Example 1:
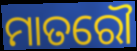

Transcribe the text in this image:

ମାତରୌ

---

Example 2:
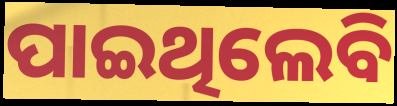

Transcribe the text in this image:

ପାଇଥିଲେବି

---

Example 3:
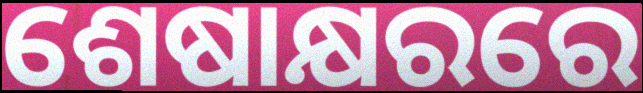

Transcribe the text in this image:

ଶେଷାକ୍ଷରରେ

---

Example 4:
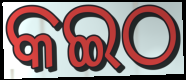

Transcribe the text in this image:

କଇଠ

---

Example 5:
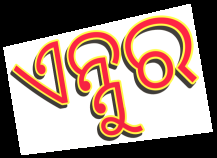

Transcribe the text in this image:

ଏନ୍ନୁର